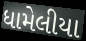
ધામેલીયા